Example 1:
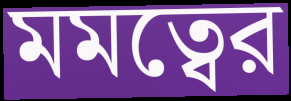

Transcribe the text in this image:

মমত্বের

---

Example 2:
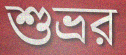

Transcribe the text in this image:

শুভ্রর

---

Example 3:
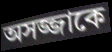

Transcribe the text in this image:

অসজ্জাকে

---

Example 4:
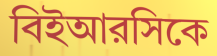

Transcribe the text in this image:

বিইআরসিকে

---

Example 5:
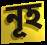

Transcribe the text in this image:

নূহ